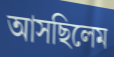
আসছিলেম